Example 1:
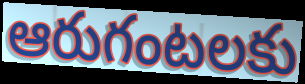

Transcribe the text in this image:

ఆరుగంటలకు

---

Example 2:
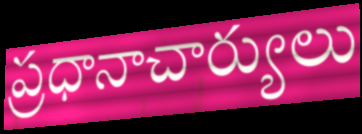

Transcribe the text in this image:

ప్రధానాచార్యులు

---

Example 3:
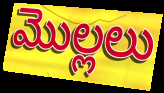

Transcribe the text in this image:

మొల్లలు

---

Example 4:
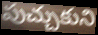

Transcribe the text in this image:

పుచ్చుకుని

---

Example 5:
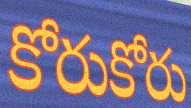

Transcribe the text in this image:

కోరుకోరు